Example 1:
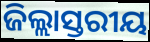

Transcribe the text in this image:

ଜିଲ୍ଲାସ୍ତରୀୟ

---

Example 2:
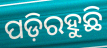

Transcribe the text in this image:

ପଡ଼ିରହୁଛି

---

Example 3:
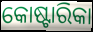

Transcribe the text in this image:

କୋଷ୍ଟାରିକା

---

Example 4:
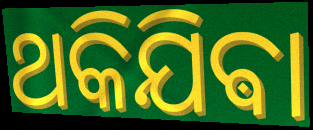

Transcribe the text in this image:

ଥକିଯିଵା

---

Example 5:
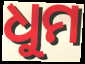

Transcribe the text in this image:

ଧୁମ